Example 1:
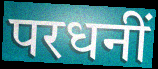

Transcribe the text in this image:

परधनीं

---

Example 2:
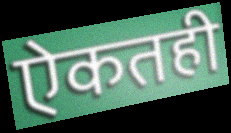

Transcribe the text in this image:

ऐकतही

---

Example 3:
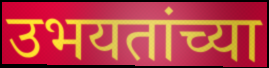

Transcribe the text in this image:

उभयतांच्या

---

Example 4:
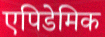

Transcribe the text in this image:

एपिडेमिक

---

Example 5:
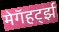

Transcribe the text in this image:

मेगॅहर्ट्झ